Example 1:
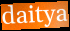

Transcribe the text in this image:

daitya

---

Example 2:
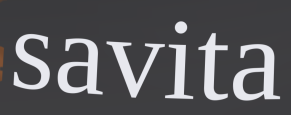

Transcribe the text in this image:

savita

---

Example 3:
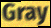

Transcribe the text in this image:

Gray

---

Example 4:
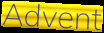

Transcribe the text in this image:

Advent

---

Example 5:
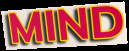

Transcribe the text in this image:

MIND